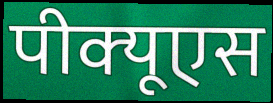
पीक्यूएस